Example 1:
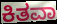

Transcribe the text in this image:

ಕಿತವಾ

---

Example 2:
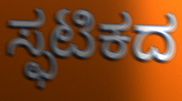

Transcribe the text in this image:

ಸ್ಫಟಿಕದ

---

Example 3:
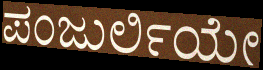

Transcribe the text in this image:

ಪಂಜುರ್ಲಿಯೇ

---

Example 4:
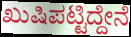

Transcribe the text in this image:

ಖುಷಿಪಟ್ಟಿದ್ದೇನೆ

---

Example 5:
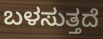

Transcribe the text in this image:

ಬಳಸುತ್ತದೆ